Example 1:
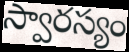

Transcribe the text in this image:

స్వారస్యం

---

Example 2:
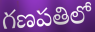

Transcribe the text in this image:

గణపతిలో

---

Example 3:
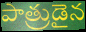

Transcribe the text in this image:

పాత్రుడైన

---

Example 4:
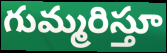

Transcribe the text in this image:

గుమ్మరిస్తూ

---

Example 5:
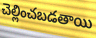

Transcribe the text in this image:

చెల్లించబడతాయి